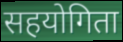
सहयोगिता